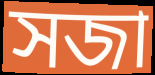
সজা